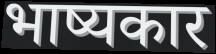
भाष्यकार